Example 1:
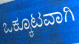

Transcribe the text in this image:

ಒಕ್ಕೂಟವಾಗಿ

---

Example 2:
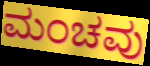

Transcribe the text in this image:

ಮಂಚವು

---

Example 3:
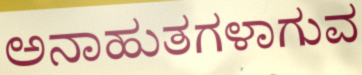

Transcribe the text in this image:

ಅನಾಹುತಗಳಾಗುವ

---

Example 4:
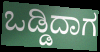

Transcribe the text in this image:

ಒಡ್ಡಿದಾಗ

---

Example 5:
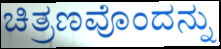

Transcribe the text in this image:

ಚಿತ್ರಣವೊಂದನ್ನು